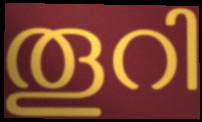
തൂറി